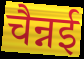
चैन्नई